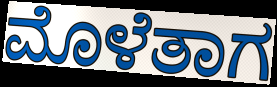
ಮೊಳೆತಾಗ